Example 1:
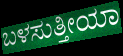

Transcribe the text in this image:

ಬಳಸುತ್ತೀಯಾ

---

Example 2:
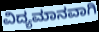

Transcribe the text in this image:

ವಿದ್ಯಮಾನವಾಗಿ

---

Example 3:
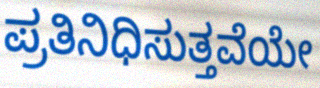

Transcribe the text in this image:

ಪ್ರತಿನಿಧಿಸುತ್ತವೆಯೇ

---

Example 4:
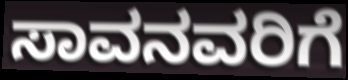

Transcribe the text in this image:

ಸಾವನವರಿಗೆ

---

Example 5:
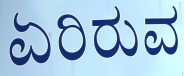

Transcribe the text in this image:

ಏರಿರುವ